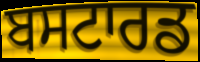
ਬਸਟਾਰਡ